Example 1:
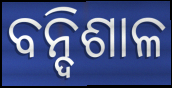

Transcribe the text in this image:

ବନ୍ଦିଶାଳ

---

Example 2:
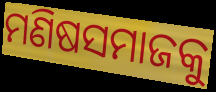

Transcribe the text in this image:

ମଣିଷସମାଜକୁ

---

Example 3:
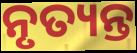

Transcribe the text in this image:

ନୃତ୍ୟନ୍ତ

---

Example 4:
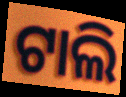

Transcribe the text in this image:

ଟାଲି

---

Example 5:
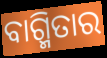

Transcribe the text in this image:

ବାଗ୍ମିତାର